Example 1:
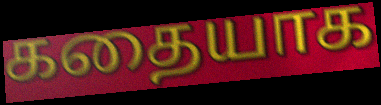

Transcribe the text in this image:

கதையாக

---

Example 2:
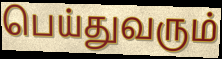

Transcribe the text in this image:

பெய்துவரும்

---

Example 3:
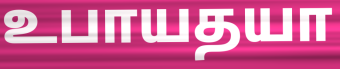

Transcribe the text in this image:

உபாயதயா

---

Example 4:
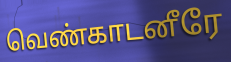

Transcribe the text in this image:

வெண்காடனீரே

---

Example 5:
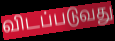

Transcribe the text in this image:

விடப்படுவது